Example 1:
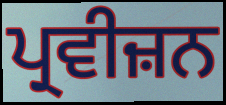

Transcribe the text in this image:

ਪ੍ਰਵੀਜ਼ਨ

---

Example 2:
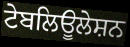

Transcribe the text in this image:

ਟੇਬਲਿਊਲੇਸ਼ਨ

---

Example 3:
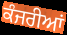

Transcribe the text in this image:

ਕੰਜਰੀਆਂ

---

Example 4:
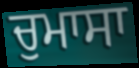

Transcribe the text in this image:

ਚੁਮਾਸਾ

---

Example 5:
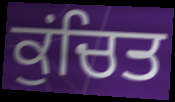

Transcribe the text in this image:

ਕੁਂਚਿਤ